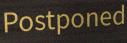
Postponed